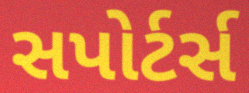
સપોર્ટર્સ